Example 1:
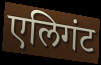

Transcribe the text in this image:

एलिगंट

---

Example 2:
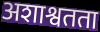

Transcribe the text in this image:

अशाश्वतता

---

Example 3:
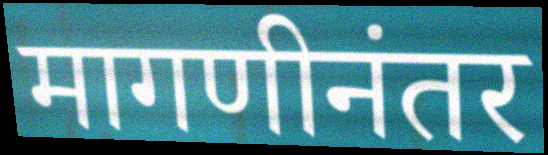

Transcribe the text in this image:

मागणीनंतर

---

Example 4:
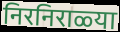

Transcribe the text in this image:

निरनिराळ्या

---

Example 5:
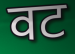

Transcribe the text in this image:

वट